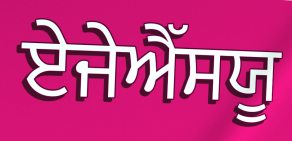
ਏਜੇਐੱਸਯੂ